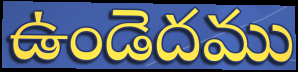
ఉండెదము